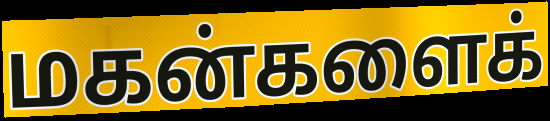
மகன்களைக்